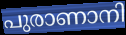
പുരാണാനി